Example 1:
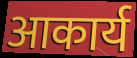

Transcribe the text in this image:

आकार्य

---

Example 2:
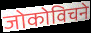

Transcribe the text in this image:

जोकोविचने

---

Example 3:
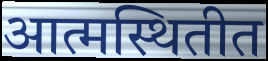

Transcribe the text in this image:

आत्मस्थितीत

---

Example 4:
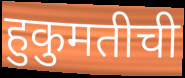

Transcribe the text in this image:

हुकुमतीची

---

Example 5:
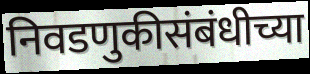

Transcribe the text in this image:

निवडणुकीसंबंधीच्या